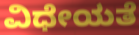
ವಿಧೇಯತೆ